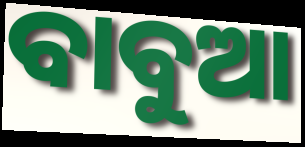
ବାବୁଆ